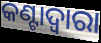
କଣ୍ଟାଦ୍ୱାରା